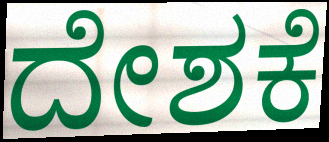
ದೇಶಕೆ